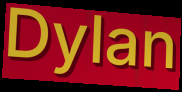
Dylan